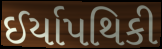
ઈર્યાપથિકી